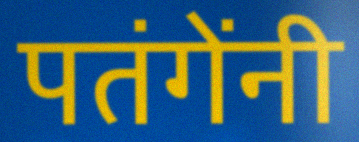
पतंगेंनी